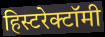
हिस्टरेक्टॉमी